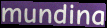
mundina